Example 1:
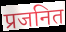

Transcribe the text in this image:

प्रजनित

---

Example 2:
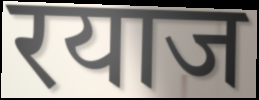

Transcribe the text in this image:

रयाज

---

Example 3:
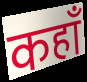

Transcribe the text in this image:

कहॉँ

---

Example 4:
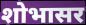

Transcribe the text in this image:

शोभासर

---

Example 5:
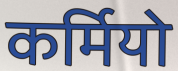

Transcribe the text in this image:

कर्मियो